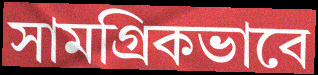
সামগ্রিকভাবে